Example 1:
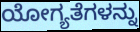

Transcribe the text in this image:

ಯೋಗ್ಯತೆಗಳನ್ನು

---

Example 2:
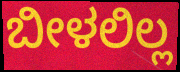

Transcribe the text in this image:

ಬೀಳಲಿಲ್ಲ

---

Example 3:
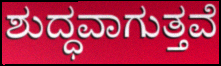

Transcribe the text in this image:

ಶುದ್ಧವಾಗುತ್ತವೆ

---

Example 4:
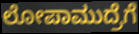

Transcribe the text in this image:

ಲೋಪಾಮುದ್ರೆಗೆ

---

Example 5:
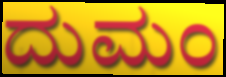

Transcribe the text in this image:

ದುಮಂ